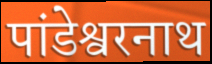
पांडेश्वरनाथ